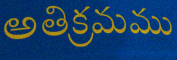
అతిక్రమము